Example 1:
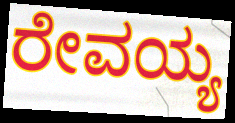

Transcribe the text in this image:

ರೇವಯ್ಯ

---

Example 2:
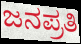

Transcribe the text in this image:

ಜನಪ್ರತಿ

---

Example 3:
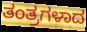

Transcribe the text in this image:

ತಂತ್ರಗಳಾದ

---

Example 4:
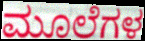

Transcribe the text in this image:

ಮೂಲೆಗಳ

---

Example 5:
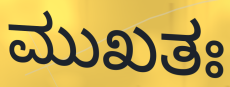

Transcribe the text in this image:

ಮುಖತಃ